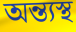
অন্ত্যস্থ